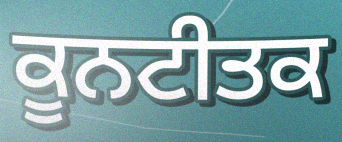
ਕੂਨਟੀਤਕ